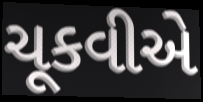
ચૂકવીએ